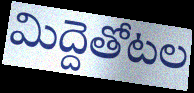
మిద్దెతోటల